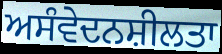
ਅਸੰਵੇਦਨਸ਼ੀਲਤਾ